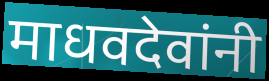
माधवदेवांनी